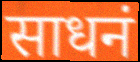
साधनं